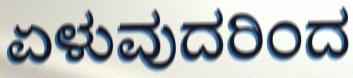
ಏಳುವುದರಿಂದ